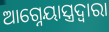
ଆଗ୍ନେୟାସ୍ତ୍ରଦ୍ୱାରା